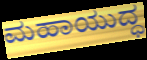
ಮಹಾಯುದ್ಧ